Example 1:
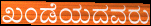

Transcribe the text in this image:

ಖಂಡೆಯದವರು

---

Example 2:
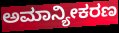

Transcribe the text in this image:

ಅಮಾನ್ಯೀಕರಣ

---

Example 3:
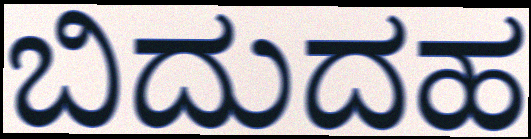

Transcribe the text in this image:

ಬಿದುದಹ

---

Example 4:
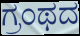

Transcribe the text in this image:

ಗ್ರಂಥದ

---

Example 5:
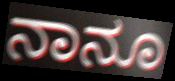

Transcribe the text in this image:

ನಾನೂ